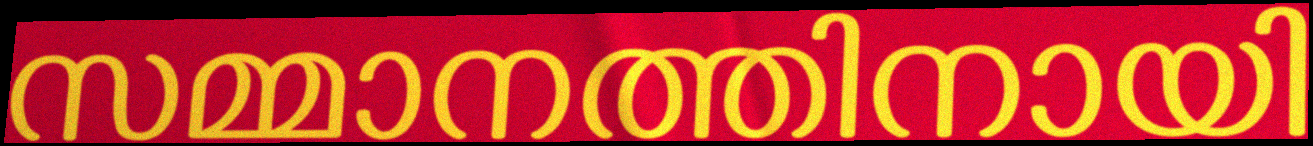
സമ്മാനത്തിനായി